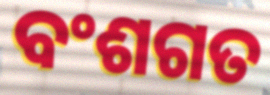
ବଂଶଗତ